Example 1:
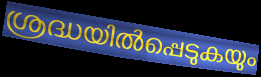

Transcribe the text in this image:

ശ്രദ്ധയിൽപ്പെടുകയും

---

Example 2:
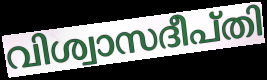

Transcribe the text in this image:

വിശ്വാസദീപ്തി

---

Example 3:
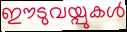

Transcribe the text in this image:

ഈടുവയ്പുകൾ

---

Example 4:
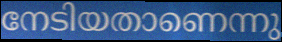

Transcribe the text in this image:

നേടിയതാണെന്നു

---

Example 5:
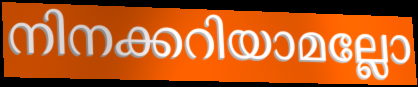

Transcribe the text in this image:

നിനക്കറിയാമല്ലോ